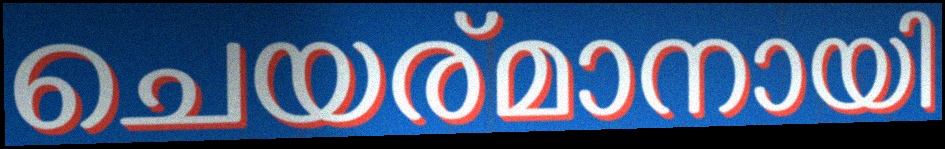
ചെയര്മാനായി